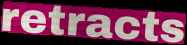
retracts